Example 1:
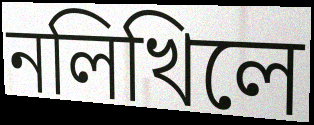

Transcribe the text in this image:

নলিখিলে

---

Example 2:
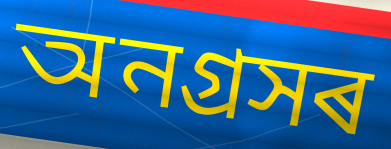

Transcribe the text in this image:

অনগ্ৰসৰ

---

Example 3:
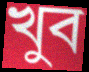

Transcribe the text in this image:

খুব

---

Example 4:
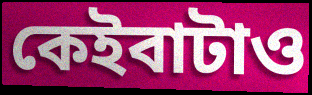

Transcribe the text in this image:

কেইবাটাও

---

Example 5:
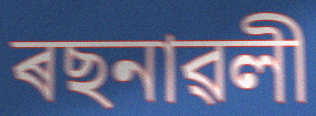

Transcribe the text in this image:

ৰছনাৱলী